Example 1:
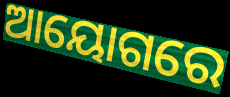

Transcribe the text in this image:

ଆୟୋଗରେ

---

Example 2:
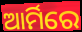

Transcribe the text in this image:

ଆର୍ମିରେ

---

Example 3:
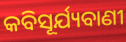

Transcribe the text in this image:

କବିସୂର୍ଯ୍ୟବାଣୀ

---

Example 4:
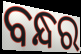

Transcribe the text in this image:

ବନ୍ଧର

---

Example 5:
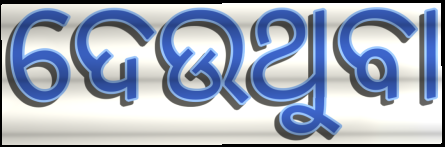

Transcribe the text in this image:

ଦେଉଥୁବା